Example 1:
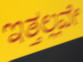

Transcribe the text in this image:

ಇತ್ತಲ್ಲವೇ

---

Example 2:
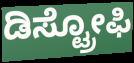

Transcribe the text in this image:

ಡಿಸ್ಟ್ರೋಫಿ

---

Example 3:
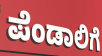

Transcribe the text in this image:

ಪೆಂಡಾಲಿಗೆ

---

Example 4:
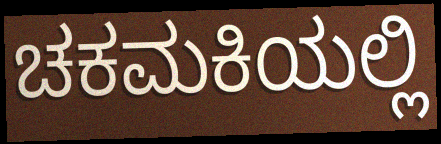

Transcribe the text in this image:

ಚಕಮಕಿಯಲ್ಲಿ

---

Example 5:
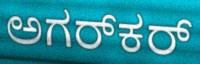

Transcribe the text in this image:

ಅಗರ್‌ಕರ್